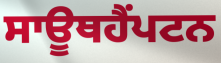
ਸਾਊਥਹੈਂਪਟਨ